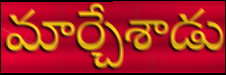
మార్చేశాడు